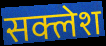
सक्लेश